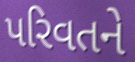
પરિવતને